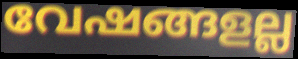
വേഷങ്ങളല്ല